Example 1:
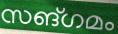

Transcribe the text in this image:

സങ്ഗമം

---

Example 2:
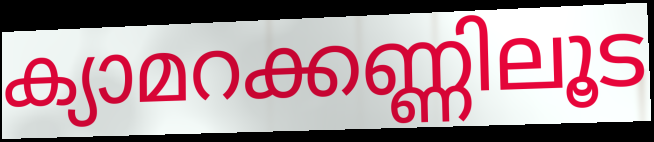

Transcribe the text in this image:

ക്യാമറക്കണ്ണിലൂട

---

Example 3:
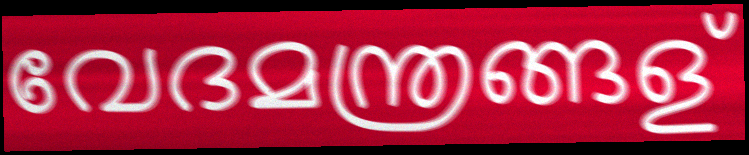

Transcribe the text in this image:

വേദമന്ത്രങ്ങള്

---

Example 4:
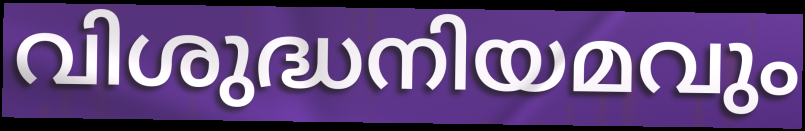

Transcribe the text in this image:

വിശുദ്ധനിയമവും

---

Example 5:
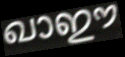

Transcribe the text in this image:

ഖാഈ